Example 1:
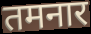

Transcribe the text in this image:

तमनार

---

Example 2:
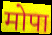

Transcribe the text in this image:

मोपा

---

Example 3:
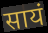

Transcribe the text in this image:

सायं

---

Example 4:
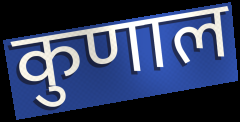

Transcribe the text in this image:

कुणाल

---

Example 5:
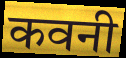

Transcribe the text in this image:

कवनी